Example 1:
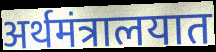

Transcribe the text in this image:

अर्थमंत्रालयात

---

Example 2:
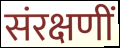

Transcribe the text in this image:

संरक्षणीं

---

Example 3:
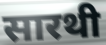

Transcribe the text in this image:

सारथी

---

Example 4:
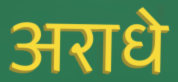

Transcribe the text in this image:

अराधे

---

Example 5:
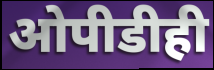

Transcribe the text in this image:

ओपीडीही